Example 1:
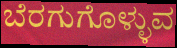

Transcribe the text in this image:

ಬೆರಗುಗೊಳ್ಳುವ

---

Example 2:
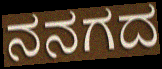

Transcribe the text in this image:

ನನಗದ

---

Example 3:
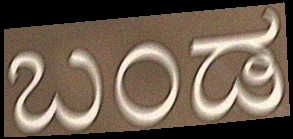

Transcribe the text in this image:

ಬಂಡ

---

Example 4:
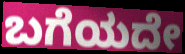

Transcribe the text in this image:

ಬಗೆಯದೇ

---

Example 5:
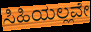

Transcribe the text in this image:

ಸಿಹಿಯಲ್ಲವೇ